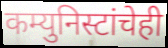
कम्युनिस्टांचेही